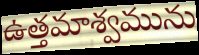
ఉత్తమాశ్వమును